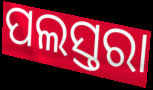
ପଲସ୍ତରା